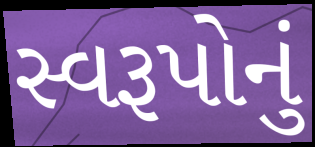
સ્વરૂપોનું